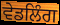
ਵੇਡਲਿੰਗ